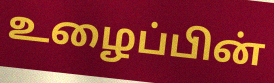
உழைப்பின்